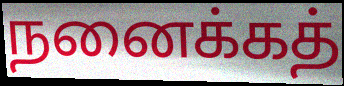
நனைக்கத்